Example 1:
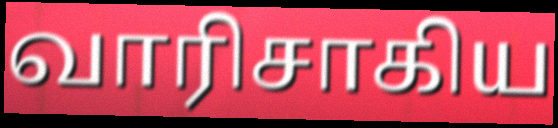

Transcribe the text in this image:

வாரிசாகிய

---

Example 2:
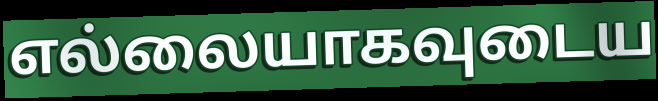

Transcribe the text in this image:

எல்லையாகவுடைய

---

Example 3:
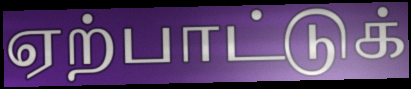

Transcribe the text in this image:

ஏற்பாட்டுக்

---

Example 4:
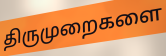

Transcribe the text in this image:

திருமுறைகளை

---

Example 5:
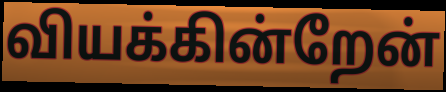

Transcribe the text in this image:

வியக்கின்றேன்